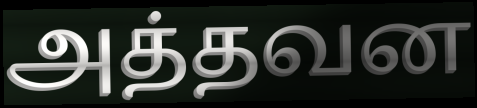
அத்தவன